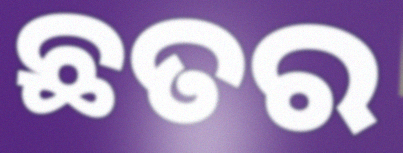
ଛତର